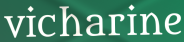
vicharine